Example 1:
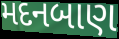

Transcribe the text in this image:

મદનબાણ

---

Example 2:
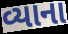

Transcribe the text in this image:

વ્યાના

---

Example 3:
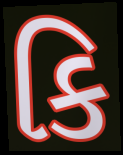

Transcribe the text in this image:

કિ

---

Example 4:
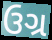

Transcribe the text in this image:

ઉગ્ર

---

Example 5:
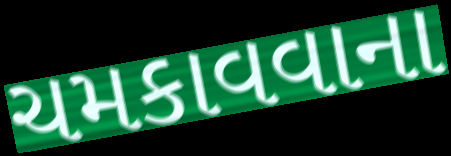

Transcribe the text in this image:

ચમકાવવાના